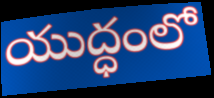
యుద్ధంలో